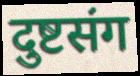
दुष्टसंग